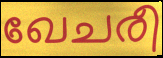
ഖേചരീ